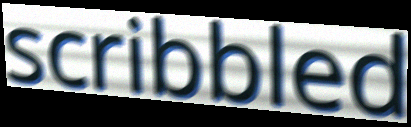
scribbled